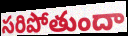
సరిపోతుందా